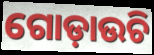
ଗୋଡ଼ାଉଚି